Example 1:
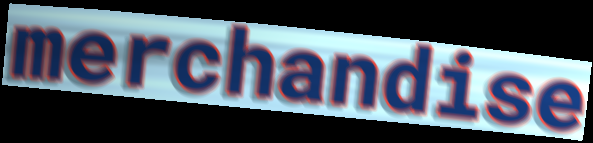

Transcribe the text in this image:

merchandise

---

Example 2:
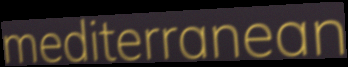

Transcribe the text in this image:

mediterranean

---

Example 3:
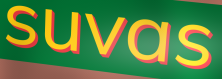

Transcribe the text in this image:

suvas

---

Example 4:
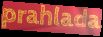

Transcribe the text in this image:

prahlada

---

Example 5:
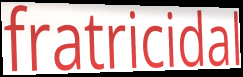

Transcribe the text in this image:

fratricidal